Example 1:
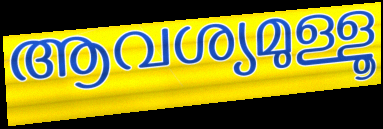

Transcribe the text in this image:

ആവശ്യമുള്ളൂ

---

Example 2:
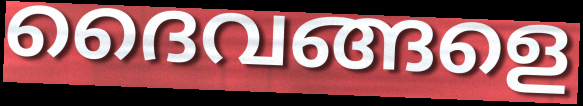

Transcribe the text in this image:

ദൈവങ്ങളെ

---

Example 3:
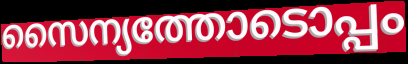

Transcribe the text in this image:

സൈന്യത്തോടൊപ്പം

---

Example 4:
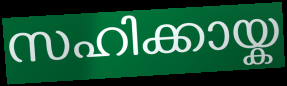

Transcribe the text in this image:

സഹിക്കായ്ക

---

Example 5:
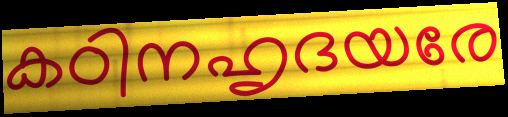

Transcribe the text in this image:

കഠിനഹൃദയരേ